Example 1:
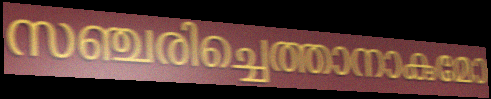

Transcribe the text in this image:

സഞ്ചരിച്ചെത്താനാകുമോ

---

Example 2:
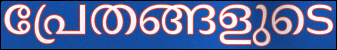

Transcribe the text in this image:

പ്രേതങ്ങളുടെ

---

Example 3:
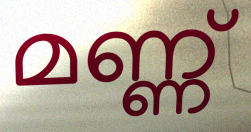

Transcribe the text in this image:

മണ്ണ്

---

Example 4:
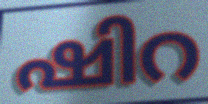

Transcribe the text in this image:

ഷിറ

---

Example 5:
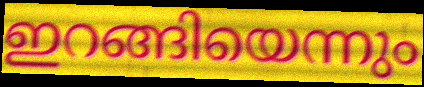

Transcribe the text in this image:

ഇറങ്ങിയെന്നും